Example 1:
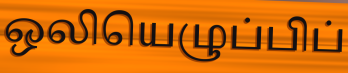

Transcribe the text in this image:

ஒலியெழுப்பிப்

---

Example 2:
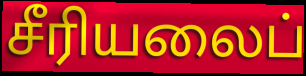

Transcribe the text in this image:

சீரியலைப்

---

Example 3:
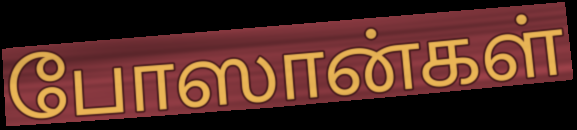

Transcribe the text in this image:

போஸான்கள்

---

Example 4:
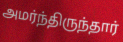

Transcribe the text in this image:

அமர்ந்திருந்தார்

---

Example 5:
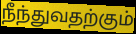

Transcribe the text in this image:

நீந்துவதற்கும்